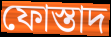
ফোস্তাদ